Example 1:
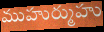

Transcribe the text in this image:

ముహుర్ముహు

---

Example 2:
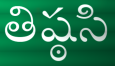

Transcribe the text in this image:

తిష్ఠసి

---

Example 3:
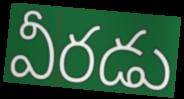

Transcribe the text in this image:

వీరడు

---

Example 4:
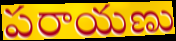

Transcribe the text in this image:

పరాయణు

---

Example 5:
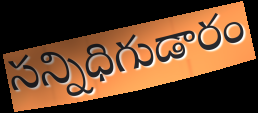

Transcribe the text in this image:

సన్నిధిగుడారం